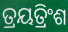
ତ୍ରୟତ୍ରିଂଶ